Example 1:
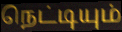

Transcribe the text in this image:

நெட்டியும்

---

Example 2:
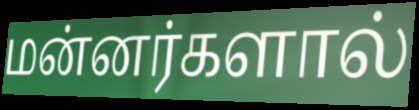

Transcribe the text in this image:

மன்னர்களால்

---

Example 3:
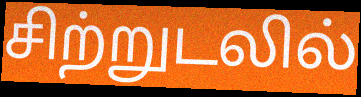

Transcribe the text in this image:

சிற்றுடலில்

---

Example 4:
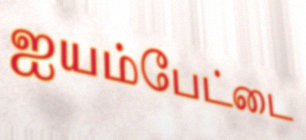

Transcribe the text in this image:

ஐயம்பேட்டை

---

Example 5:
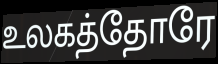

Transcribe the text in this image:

உலகத்தோரே